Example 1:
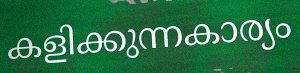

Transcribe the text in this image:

കളിക്കുന്നകാര്യം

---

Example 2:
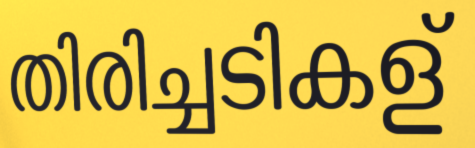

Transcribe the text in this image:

തിരിച്ചടികള്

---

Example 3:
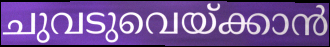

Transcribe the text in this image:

ചുവടുവെയ്ക്കാൻ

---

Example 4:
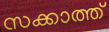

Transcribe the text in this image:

സക്കാത്ത്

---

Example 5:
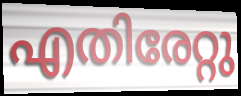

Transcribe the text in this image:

എതിരേറ്റു